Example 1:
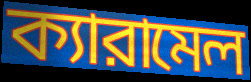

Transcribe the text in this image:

ক্যারামেল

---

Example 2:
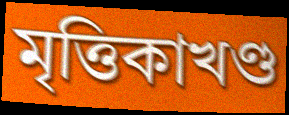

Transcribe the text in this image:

মৃত্তিকাখণ্ড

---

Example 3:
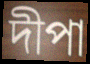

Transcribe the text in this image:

দীপা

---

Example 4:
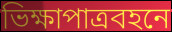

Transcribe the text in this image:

ভিক্ষাপাত্রবহনে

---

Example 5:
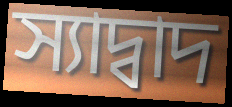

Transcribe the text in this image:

স্যাদ্বাদ